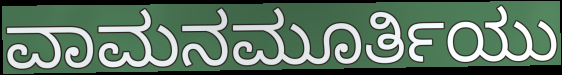
ವಾಮನಮೂರ್ತಿಯು